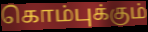
கொம்புக்கும்